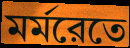
মর্মরেতে